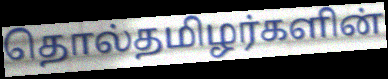
தொல்தமிழர்களின்